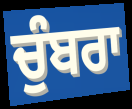
ਚੁੰਬਰਾ